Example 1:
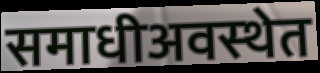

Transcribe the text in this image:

समाधीअवस्थेत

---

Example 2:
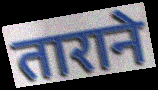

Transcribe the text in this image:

ताराने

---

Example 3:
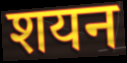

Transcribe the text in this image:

शयन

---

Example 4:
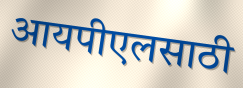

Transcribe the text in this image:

आयपीएलसाठी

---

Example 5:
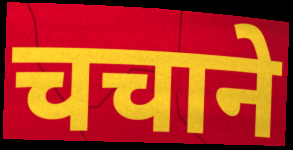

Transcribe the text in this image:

चचाने